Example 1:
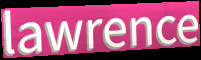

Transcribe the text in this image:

lawrence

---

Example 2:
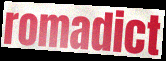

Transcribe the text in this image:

romadict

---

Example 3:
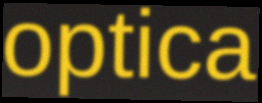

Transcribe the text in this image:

optica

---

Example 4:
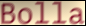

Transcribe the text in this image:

Bolla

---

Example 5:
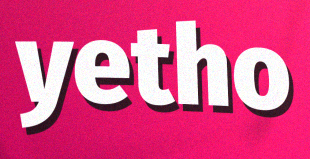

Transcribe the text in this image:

yetho